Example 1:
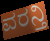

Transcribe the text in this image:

ವರನ್ತಿ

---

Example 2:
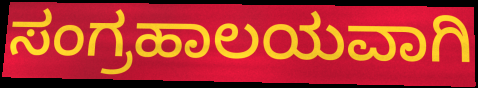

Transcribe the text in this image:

ಸಂಗ್ರಹಾಲಯವಾಗಿ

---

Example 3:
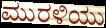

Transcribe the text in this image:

ಮುರಳಿಯು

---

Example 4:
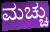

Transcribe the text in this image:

ಮಚ್ಚು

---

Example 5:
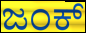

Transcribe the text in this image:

ಜಂಕ್